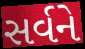
સર્વને